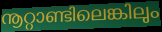
നൂറ്റാണ്ടിലെങ്കിലും